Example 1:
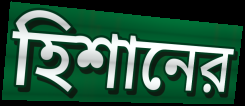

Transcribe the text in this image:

হিশানের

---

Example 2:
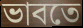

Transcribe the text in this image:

ভাবতে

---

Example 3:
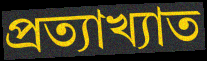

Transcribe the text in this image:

প্রত্যাখ্যাত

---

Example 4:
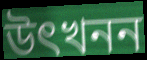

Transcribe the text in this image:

উৎখনন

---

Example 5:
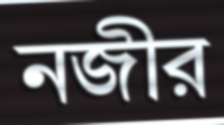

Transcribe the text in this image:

নজীর